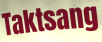
Taktsang